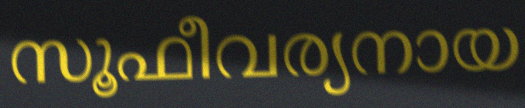
സൂഫീവര്യനായ